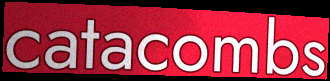
catacombs